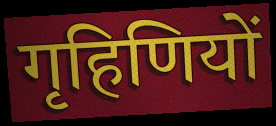
गृहिणियों